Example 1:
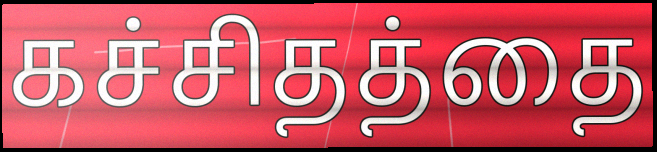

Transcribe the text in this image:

கச்சிதத்தை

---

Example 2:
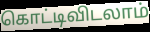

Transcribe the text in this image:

கொட்டிவிடலாம்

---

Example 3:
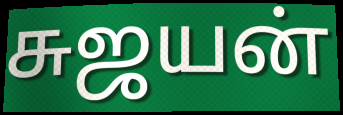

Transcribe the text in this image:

சுஜயன்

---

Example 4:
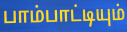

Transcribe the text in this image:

பாம்பாட்டியும்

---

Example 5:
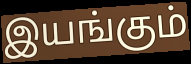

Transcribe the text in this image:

இயங்கும்